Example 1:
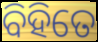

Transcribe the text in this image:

ବିହିତେ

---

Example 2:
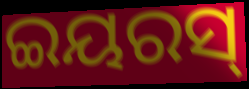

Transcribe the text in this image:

ଇୟରସ୍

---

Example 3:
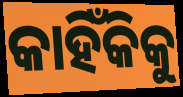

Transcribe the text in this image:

କାହିଁକିକୁ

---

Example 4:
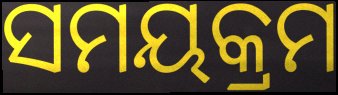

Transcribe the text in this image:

ସମୟକ୍ରମ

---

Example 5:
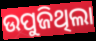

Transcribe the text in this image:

ଉପୁଜିଥିଲା